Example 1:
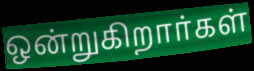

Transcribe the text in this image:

ஒன்றுகிறார்கள்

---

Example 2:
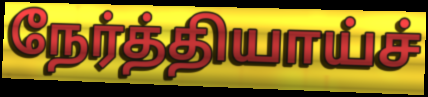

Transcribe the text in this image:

நேர்த்தியாய்ச்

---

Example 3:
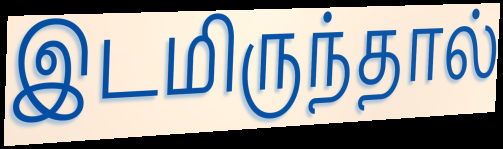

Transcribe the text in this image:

இடமிருந்தால்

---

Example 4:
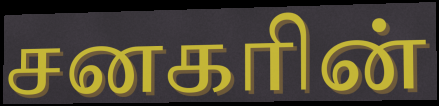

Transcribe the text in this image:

சனகரின்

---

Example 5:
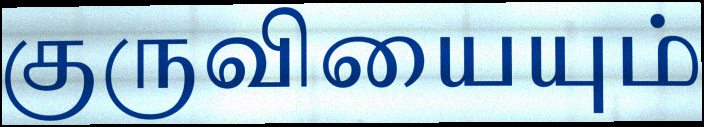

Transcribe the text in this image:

குருவியையும்